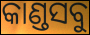
କାଣ୍ଡସବୁ